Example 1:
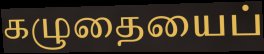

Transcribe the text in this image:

கழுதையைப்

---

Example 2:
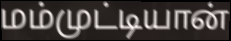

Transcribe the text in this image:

மம்முட்டியான்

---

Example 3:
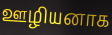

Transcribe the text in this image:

ஊழியனாக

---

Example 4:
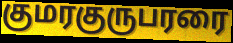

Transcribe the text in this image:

குமரகுருபரரை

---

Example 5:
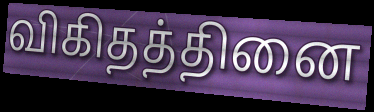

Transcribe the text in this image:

விகிதத்தினை